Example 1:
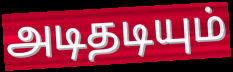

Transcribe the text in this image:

அடிதடியும்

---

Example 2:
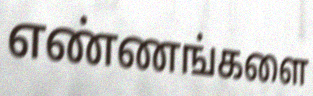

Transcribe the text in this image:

எண்ணங்களை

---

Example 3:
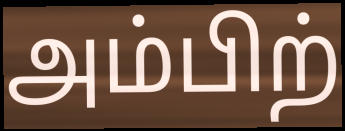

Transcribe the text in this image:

அம்பிற்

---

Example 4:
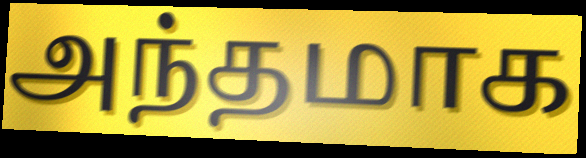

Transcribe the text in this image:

அந்தமாக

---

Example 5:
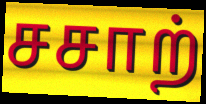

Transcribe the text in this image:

சசாற்